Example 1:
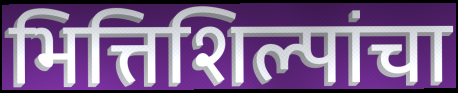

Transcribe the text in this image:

भित्तिशिल्पांचा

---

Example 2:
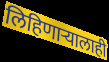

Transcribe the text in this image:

लिहिणाऱ्यालाही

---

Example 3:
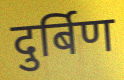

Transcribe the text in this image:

दुर्बिण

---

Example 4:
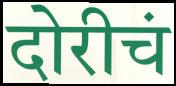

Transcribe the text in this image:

दोरीचं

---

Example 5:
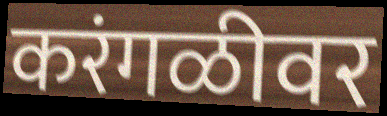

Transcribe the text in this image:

करंगळीवर